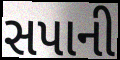
સપાની